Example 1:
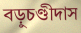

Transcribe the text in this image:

বড়ুচণ্ডীদাস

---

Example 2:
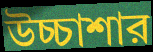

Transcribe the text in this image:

উচ্চাশার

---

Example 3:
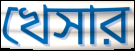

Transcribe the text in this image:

খেসার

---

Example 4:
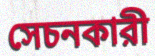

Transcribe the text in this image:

সেচনকারী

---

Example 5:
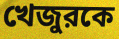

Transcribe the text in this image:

খেজুরকে